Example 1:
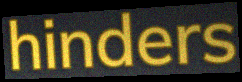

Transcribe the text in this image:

hinders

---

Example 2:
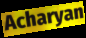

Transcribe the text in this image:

Acharyan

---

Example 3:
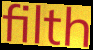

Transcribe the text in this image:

filth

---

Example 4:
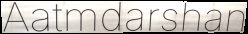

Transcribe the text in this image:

Aatmdarshan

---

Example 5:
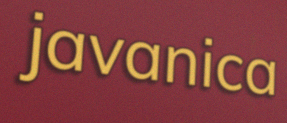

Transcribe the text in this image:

javanica